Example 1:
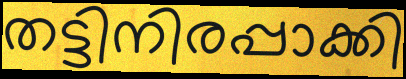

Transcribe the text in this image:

തട്ടിനിരപ്പാക്കി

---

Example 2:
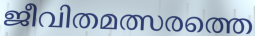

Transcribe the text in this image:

ജീവിതമത്സരത്തെ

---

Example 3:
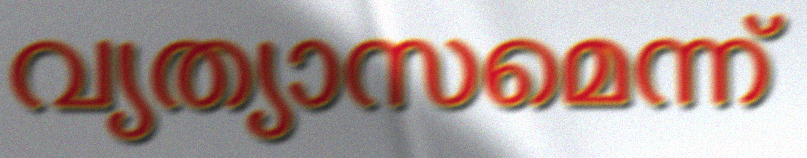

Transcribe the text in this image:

വ്യത്യാസമെന്ന്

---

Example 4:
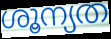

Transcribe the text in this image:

ശൂന്യത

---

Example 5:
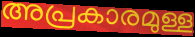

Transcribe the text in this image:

അപ്രകാരമുള്ള